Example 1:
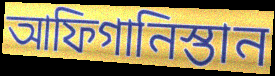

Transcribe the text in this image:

আফিগানিস্তান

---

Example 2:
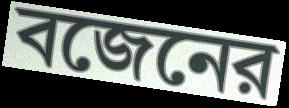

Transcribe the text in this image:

বজেনের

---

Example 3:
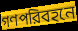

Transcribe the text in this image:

গণপরিবহনে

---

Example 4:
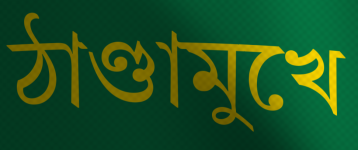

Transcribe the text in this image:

ঠাণ্ডামুখে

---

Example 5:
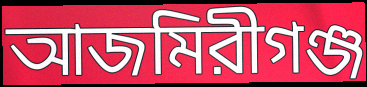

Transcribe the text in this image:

আজমিরীগঞ্জ